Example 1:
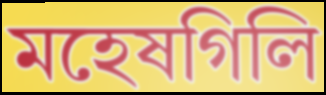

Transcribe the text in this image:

মহেষগিলি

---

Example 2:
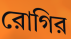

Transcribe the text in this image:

রোগির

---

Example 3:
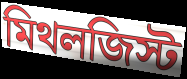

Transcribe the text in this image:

মিথলজিস্ট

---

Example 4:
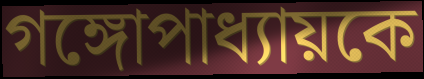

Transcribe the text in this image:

গঙ্গোপাধ্যায়কে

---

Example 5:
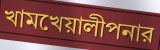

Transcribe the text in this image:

খামখেয়ালীপনার